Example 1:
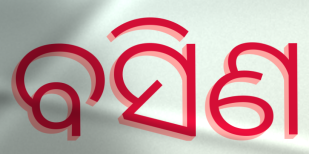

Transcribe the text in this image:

ବସିଣ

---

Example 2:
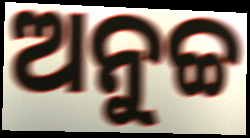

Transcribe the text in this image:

ଅନୁଚ୍ଚ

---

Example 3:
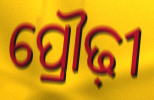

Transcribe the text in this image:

ପ୍ରୌଢ଼ୀ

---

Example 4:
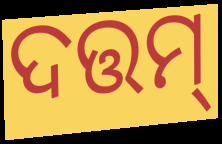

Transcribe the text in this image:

ଦତ୍ତମ୍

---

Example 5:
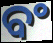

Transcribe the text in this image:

ବଂ